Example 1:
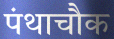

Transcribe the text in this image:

पंथाचौक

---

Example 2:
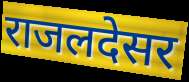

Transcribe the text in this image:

राजलदेसर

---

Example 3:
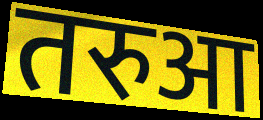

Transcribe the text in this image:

तरुआ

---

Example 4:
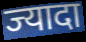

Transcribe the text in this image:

ज्‍यादा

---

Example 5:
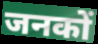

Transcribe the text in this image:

जनकों